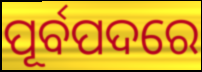
ପୂର୍ବପଦରେ